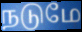
நடுமே